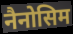
नैनोसिम